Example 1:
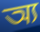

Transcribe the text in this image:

অ্য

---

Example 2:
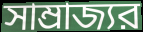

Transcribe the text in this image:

সাম্রাজ্যর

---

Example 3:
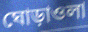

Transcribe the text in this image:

ঘোড়াওলা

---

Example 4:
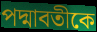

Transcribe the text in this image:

পদ্মাবতীকে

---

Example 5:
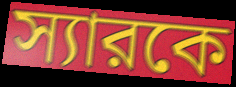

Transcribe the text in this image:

স্যারকে